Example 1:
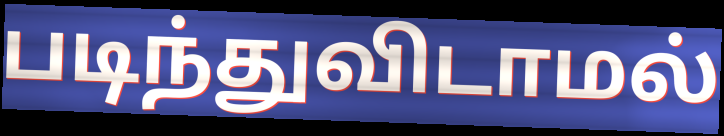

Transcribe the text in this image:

படிந்துவிடாமல்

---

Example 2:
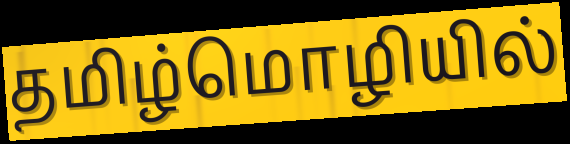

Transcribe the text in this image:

தமிழ்மொழியில்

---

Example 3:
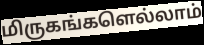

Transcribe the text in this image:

மிருகங்களெல்லாம்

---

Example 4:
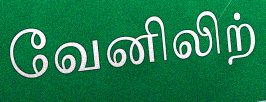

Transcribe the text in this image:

வேனிலிற்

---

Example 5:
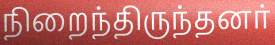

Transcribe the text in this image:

நிறைந்திருந்தனர்